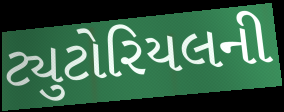
ટ્યુટોરિયલની